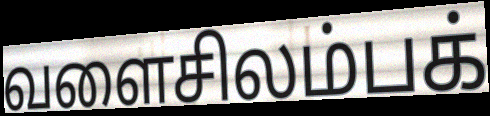
வளைசிலம்பக்